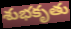
శుభకృతు